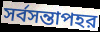
সর্বসন্তাপহর